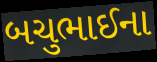
બચુભાઈના